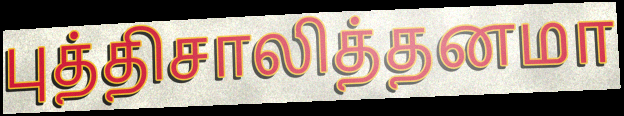
புத்திசாலித்தனமா